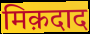
मिक़दाद